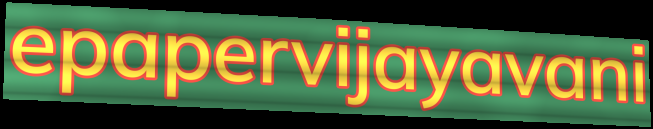
epapervijayavani